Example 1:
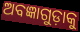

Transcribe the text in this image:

ଅବଜ୍ଞାଗୁଡ଼ାକୁ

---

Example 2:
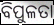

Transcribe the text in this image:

ବିପୁଳତା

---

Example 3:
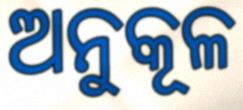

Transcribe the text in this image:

ଅନୁକୂଳ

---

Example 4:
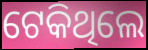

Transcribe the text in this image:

ଟେକିଥିଲେ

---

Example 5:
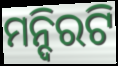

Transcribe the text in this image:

ମନ୍ଦିରଟି